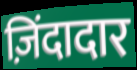
ज़िंदादार